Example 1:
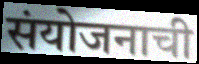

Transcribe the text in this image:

संयोजनाची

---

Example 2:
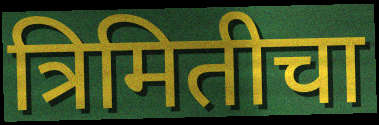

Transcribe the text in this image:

त्रिमितीचा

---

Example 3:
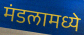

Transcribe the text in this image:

मंडलामध्ये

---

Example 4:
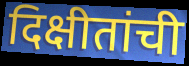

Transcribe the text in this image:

दिक्षीतांची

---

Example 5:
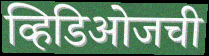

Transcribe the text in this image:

व्हिडिओजची